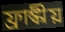
ফ্রাঙ্কীয়